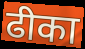
ढीका